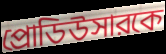
প্রোডিউসারকে